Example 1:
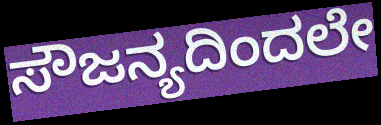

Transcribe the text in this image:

ಸೌಜನ್ಯದಿಂದಲೇ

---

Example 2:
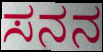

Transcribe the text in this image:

ಸನನ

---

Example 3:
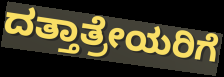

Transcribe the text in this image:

ದತ್ತಾತ್ರೇಯರಿಗೆ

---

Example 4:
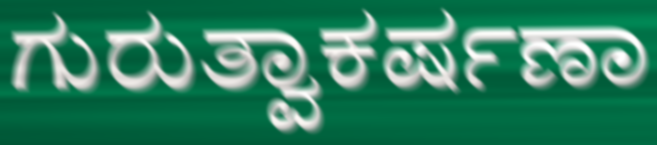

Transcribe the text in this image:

ಗುರುತ್ವಾಕರ್ಷಣಾ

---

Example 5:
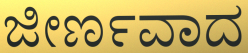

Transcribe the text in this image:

ಜೀರ್ಣವಾದ